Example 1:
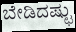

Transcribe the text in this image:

ಬೇಡಿದಷ್ಟು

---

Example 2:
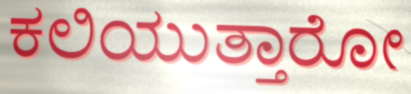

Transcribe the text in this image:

ಕಲಿಯುತ್ತಾರೋ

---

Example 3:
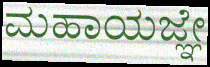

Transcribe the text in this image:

ಮಹಾಯಜ್ಞೇ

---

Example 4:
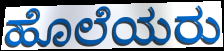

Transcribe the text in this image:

ಹೊಲೆಯರು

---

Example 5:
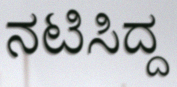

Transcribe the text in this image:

ನಟಿಸಿದ್ದ